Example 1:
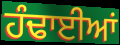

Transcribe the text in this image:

ਹੰਢਾਈਆਂ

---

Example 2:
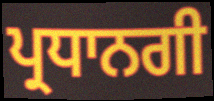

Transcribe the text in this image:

ਪ੍ਰਧਾਨਗੀ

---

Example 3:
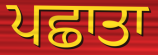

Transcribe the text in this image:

ਪਛਾਤਾ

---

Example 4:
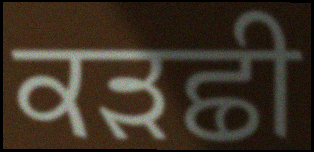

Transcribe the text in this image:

ਕੜਛੀ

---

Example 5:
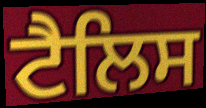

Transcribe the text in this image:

ਟੈਲਿਸ